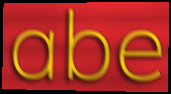
abe